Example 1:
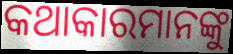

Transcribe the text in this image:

କଥାକାରମାନଙ୍କୁ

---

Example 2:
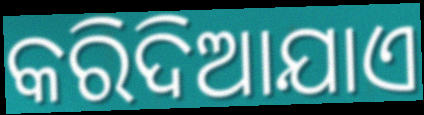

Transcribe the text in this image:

କରିଦିଆଯାଏ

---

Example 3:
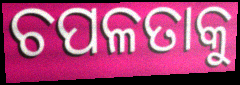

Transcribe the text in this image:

ଚପଳତାକୁ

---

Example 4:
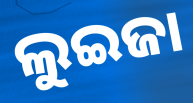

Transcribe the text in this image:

ଲୁଇଜା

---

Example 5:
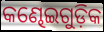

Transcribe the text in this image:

କଣ୍ଢେଇଗୁଡ଼ିକ